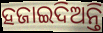
ହଜାଇଦିଅନ୍ତି